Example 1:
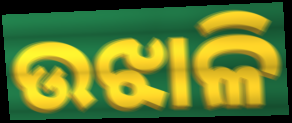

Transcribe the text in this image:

ଉଝାଳି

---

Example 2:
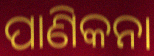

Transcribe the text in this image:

ପାଣିକନା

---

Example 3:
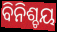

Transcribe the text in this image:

ବିନିଶ୍ଚୟ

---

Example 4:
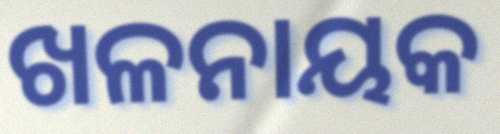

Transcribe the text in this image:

ଖଳନାୟକ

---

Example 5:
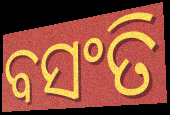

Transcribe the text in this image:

ବସଂତି